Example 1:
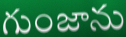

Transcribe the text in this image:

గుంజాను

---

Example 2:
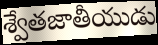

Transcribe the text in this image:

శ్వేతజాతీయుడు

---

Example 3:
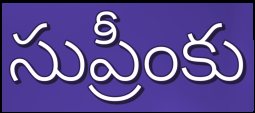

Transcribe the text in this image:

సుప్రీంకు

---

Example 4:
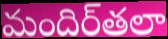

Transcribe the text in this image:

మందిర్‌తలా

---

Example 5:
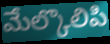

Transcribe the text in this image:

మేల్కొలిపి